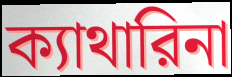
ক্যাথারিনা